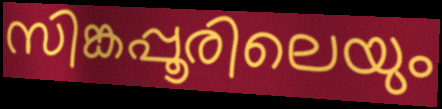
സിങ്കപ്പൂരിലെയും